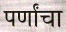
पर्णांचा